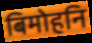
बिमोहनि